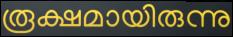
രൂക്ഷമായിരുന്നു